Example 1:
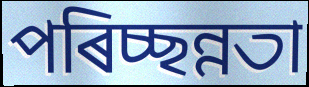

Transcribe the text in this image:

পৰিচ্ছন্নতা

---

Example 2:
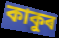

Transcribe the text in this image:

কাকুৰ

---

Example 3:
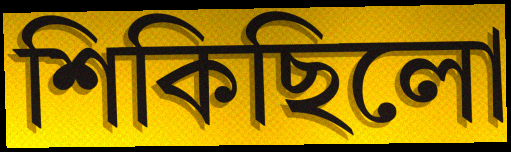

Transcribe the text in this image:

শিকিছিলো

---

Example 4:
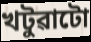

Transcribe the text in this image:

খটুৱাটো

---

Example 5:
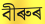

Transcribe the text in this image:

বীৰুৰ